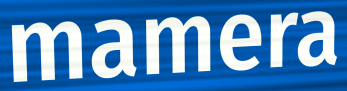
mamera